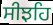
ਸੀਝਹਿ